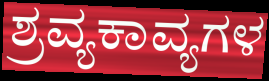
ಶ್ರವ್ಯಕಾವ್ಯಗಳ